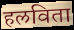
हलविता